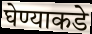
घेण्याकडे